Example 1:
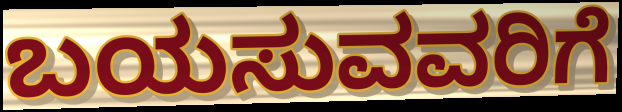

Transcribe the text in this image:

ಬಯಸುವವರಿಗೆ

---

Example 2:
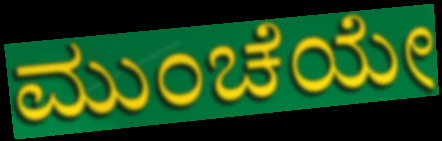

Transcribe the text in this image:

ಮುಂಚೆಯೇ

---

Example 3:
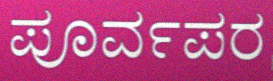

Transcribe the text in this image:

ಪೂರ್ವಪರ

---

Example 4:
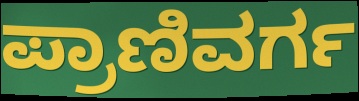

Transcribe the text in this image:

ಪ್ರಾಣಿವರ್ಗ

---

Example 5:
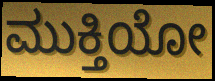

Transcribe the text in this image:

ಮುಕ್ತಿಯೋ